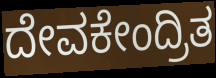
ದೇವಕೇಂದ್ರಿತ